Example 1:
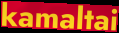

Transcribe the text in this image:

kamaltai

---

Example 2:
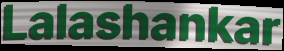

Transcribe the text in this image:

Lalashankar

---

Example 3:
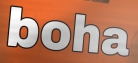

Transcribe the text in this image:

boha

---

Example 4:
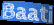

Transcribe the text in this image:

Baati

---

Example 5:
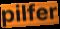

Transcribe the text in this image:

pilfer